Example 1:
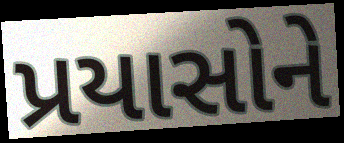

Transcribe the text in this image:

પ્રયાસોને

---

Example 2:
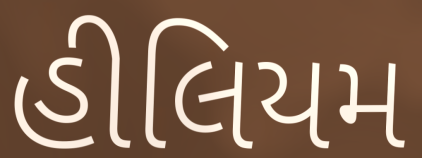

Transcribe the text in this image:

હીલિયમ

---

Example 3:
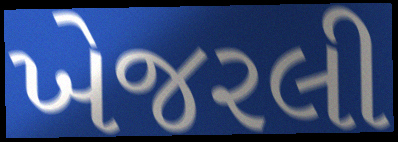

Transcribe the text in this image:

ખેજરલી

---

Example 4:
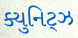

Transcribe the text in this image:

ક્યુનિટ્ઝ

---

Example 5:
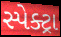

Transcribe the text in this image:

સ્પેક્ટ્રા